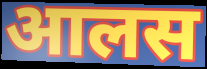
आलस